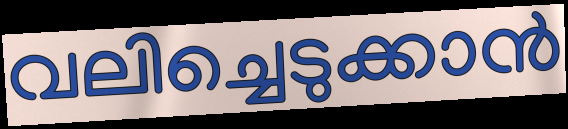
വലിച്ചെടുക്കാൻ